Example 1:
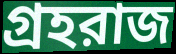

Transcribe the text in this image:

গ্রহরাজ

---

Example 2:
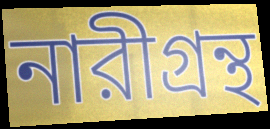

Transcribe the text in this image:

নারীগ্রন্থ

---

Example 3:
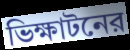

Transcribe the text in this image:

ভিক্ষাটনের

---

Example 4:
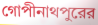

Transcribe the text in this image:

গোপীনাথপুরের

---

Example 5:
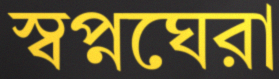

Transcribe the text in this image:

স্বপ্নঘেরা